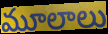
మూలాలు